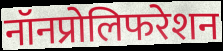
नॉनप्रोलिफरेशन